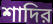
শাদির